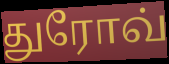
துரோவ்